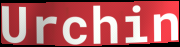
Urchin